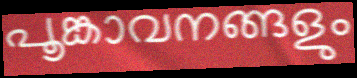
പൂങ്കാവനങ്ങളും